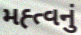
મહ્ત્વનું